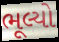
ભૂલ્યો